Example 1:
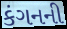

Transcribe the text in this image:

કંગનની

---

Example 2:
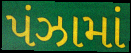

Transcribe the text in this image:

પંઝામાં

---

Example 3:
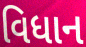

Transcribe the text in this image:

વિધાન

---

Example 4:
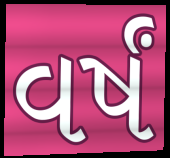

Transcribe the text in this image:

વર્ષં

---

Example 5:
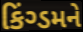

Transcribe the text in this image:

કિંગ્ડમને